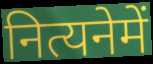
नित्यनेमें